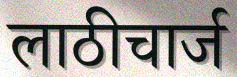
लाठीचार्ज